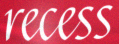
recess